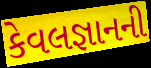
કેવલજ્ઞાનની